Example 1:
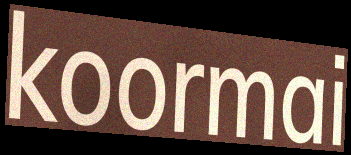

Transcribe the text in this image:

koormai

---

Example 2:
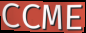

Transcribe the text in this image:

CCME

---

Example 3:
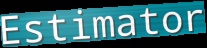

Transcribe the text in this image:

Estimator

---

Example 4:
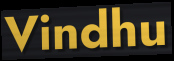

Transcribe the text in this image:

Vindhu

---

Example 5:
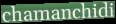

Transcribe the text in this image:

chamanchidi